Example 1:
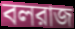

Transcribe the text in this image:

বলরাজ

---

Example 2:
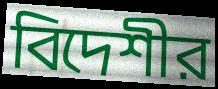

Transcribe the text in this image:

বিদেশীর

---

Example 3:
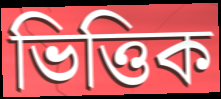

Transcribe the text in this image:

ভিত্তিক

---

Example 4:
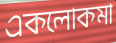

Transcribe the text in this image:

একলোকমা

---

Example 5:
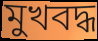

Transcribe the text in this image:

মুখবদ্ধ